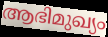
ആഭിമുഖ്യം